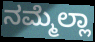
ನಮ್ಮೆಲ್ಲಾ